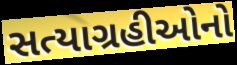
સત્યાગ્રહીઓનો